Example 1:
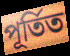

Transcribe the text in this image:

পূৰ্তিত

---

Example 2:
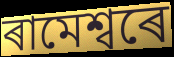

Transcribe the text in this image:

ৰামেশ্বৰে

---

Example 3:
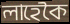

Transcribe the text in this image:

লাহেকৈ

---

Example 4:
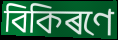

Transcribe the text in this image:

বিকিৰণে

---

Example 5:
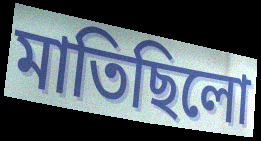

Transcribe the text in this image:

মাতিছিলো